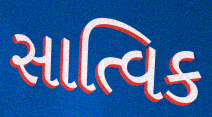
સાત્વિક